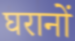
घरानों